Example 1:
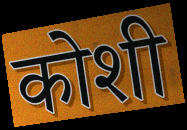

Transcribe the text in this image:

कोशी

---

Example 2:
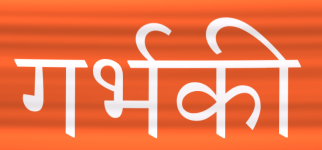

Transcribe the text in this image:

गर्भकी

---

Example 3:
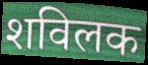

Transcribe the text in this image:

शविलक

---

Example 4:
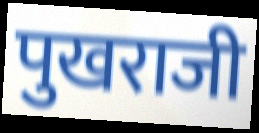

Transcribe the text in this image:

पुखराजी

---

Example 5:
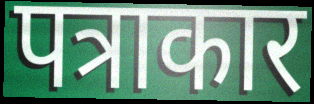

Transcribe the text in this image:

पत्राकार